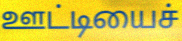
ஊட்டியைச்